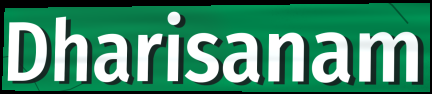
Dharisanam